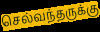
செல்வந்தருக்கு